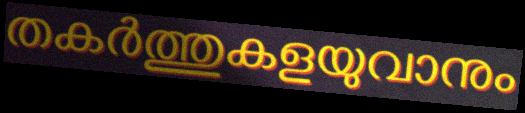
തകർത്തുകളയുവാനും